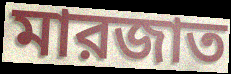
মারজাত